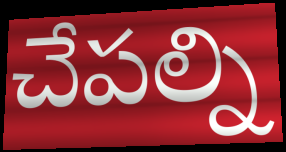
చేపల్ని